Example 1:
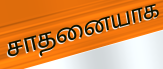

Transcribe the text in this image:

சாதனையாக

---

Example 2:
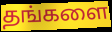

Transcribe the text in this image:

தங்களை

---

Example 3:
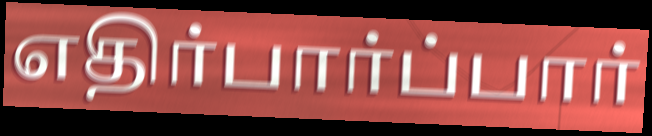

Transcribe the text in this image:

எதிர்பார்ப்பார்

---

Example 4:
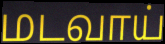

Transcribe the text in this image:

மடவாய்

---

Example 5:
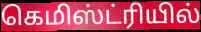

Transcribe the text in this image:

கெமிஸ்ட்ரியில்